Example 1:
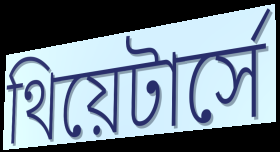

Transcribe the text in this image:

থিয়েটার্সে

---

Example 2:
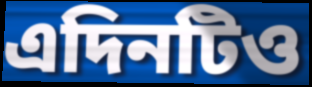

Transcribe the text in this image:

এদিনটিও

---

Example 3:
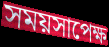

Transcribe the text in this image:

সময়সাপেক্ষ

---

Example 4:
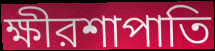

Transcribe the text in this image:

ক্ষীরশাপাতি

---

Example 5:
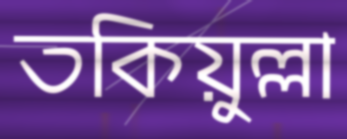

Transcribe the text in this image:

তকিয়ুল্লা